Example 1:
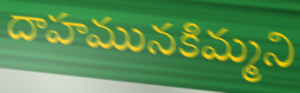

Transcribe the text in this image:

దాహమునకిమ్మని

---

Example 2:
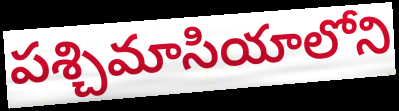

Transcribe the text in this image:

పశ్చిమాసియాలోని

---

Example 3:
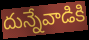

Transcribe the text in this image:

దున్నేవాడికి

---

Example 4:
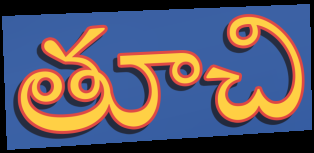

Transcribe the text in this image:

తూచి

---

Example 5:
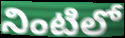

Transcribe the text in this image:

నింటిలో